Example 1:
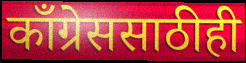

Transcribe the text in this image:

काँग्रेससाठीही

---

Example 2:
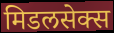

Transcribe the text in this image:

मिडलसेक्स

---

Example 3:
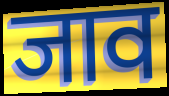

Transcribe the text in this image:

जाव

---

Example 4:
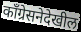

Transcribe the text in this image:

काँग्रेसनेदेखील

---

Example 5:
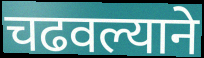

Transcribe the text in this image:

चढवल्याने